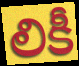
లికీ